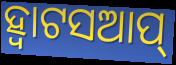
ହ୍ବାଟସଆପ୍